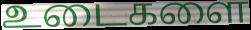
உடைகளை